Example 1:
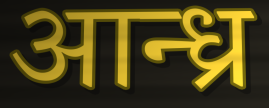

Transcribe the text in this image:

आन्ध्र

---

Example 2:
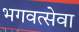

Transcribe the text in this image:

भगवत्सेवा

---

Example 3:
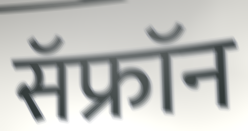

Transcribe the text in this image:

सॅफ्रॉन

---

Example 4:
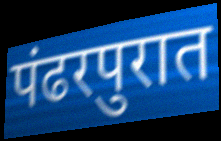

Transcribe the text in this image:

पंढरपुरात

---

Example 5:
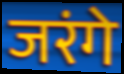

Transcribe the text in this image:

जरंगे